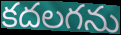
కదలగను